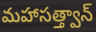
మహాసత్త్వాన్